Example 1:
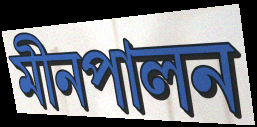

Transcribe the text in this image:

মীনপালন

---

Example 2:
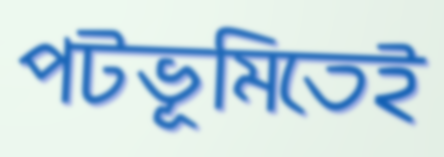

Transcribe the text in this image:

পটভূমিতেই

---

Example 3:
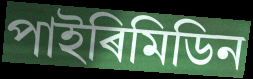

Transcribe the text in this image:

পাইৰিমিডিন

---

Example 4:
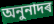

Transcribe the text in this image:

অনুনাদৰ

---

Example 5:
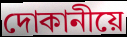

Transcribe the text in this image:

দোকানীয়ে